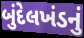
બુંદેલખંડનું